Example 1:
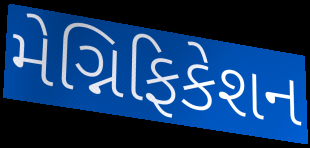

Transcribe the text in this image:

મેગ્નિફિકેશન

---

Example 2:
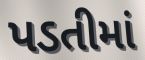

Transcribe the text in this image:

પડતીમાં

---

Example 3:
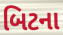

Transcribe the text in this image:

બિટના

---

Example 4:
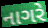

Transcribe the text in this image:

નાગરે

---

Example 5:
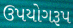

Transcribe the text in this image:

ઉપયોગરૂપ